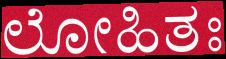
ಲೋಹಿತಃ